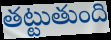
తట్టుతుంది